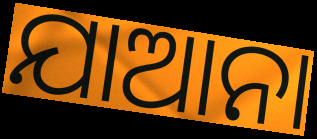
ଯାଆନା